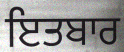
ਇਤਬਾਰ